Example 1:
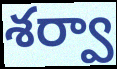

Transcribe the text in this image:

శర్వా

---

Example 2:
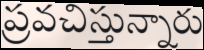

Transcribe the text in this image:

ప్రవచిస్తున్నారు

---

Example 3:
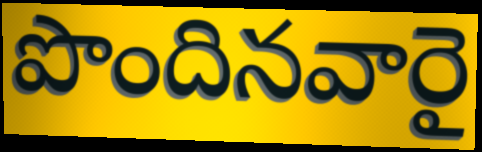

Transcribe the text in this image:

పొందినవారై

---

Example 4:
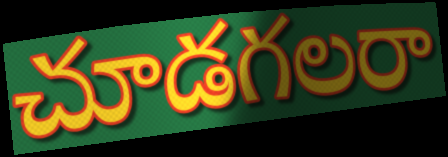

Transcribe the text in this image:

చూడగలరా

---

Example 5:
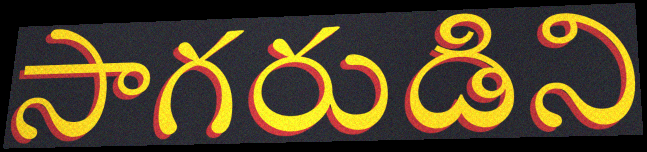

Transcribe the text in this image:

సాగరుడిని